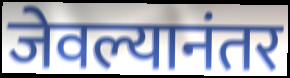
जेवल्यानंतर